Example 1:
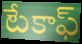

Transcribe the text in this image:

టేకాఫ్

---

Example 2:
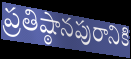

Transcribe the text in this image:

ప్రతిష్ఠానపురానికి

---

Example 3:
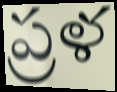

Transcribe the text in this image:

ప్రళ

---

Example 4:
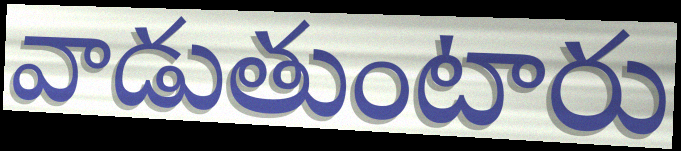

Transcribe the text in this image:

వాడుతుంటారు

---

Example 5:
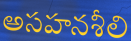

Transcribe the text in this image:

అసహనశీలి